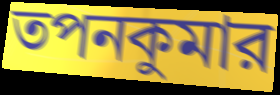
তপনকুমার